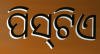
ପିସ୍‌ଟିଏ